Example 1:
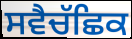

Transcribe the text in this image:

ਸਵੈਚੱਛਿਕ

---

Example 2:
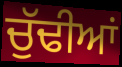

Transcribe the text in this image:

ਚੁੱਢੀਆਂ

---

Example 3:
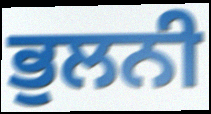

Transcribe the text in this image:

ਭੁਲਨੀ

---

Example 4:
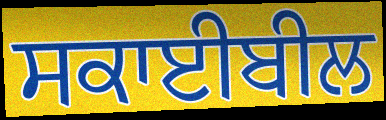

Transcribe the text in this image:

ਸਕਾਈਬੀਲ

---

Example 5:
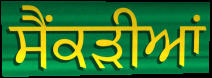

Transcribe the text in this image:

ਸੈਂਕੜੀਆਂ